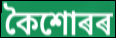
কৈশোৰৰ